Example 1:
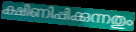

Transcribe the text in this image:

ക്ഷീണിപ്പിക്കുന്നതും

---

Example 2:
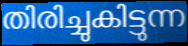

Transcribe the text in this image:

തിരിച്ചുകിട്ടുന്ന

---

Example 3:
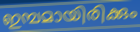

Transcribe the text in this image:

ഇമ്പമായിരിക്കും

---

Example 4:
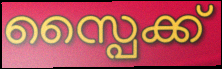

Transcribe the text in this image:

സ്പൈക്ക്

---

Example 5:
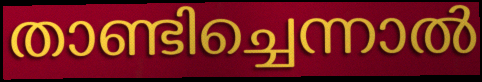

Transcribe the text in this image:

താണ്ടിച്ചെന്നാൽ